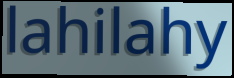
lahilahy